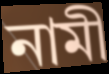
নামী